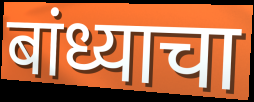
बांध्याचा